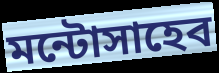
মন্টোসাহেব